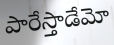
పారేస్తాడేమో